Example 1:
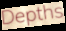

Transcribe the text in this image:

Depths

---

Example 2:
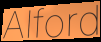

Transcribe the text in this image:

Alford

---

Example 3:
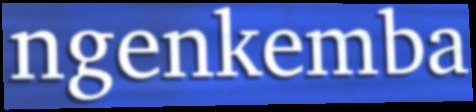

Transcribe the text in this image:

ngenkemba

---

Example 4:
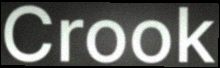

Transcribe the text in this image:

Crook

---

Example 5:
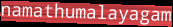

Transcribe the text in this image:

namathumalayagam